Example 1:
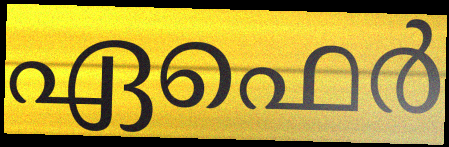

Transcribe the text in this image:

ഏഫെർ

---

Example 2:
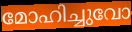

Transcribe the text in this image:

മോഹിച്ചുവോ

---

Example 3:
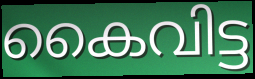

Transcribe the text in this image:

കൈവിട്ട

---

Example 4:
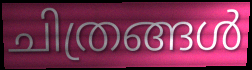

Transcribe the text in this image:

ചിത്രങ്ങൾ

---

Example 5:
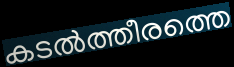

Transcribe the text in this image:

കടൽത്തീരത്തെ